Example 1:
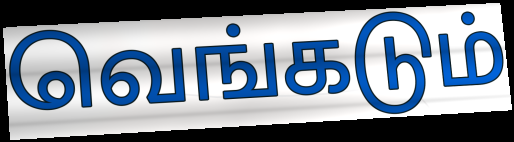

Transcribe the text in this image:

வெங்கடும்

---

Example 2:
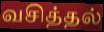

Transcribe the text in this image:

வசித்தல்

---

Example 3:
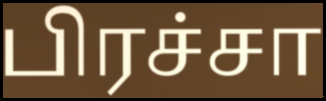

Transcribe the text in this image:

பிரச்சா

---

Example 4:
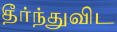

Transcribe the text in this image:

தீர்ந்துவிட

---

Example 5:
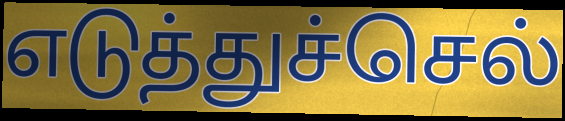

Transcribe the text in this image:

எடுத்துச்செல்